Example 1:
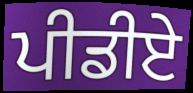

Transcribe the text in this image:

ਪੀਡੀਏ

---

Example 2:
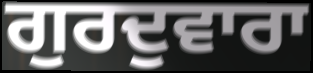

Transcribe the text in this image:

ਗੁਰਦੁਵਾਰਾ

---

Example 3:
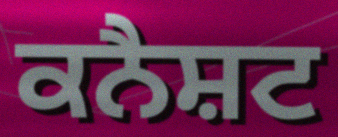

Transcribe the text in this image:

ਕਨੈਸ਼ਟ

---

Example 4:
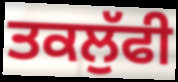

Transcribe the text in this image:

ਤਕਲੁੱਫੀ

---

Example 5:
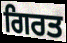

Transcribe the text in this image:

ਗਿਰਤ